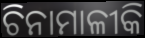
ଚିନାମାଳୀକି